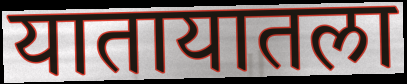
यातायातला